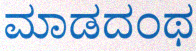
ಮಾಡದಂಥ